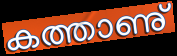
കത്താണു്